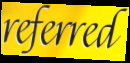
referred